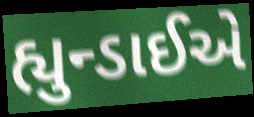
હ્યુન્ડાઈએ